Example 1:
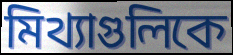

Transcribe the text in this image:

মিথ্যাগুলিকে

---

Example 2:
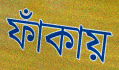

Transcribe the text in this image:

ফাঁকায়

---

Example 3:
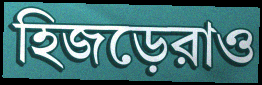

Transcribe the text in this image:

হিজড়েরাও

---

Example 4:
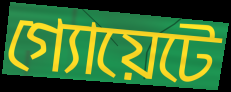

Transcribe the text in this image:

গ্যোয়েটে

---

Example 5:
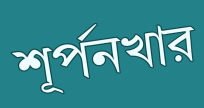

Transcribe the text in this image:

শূর্পনখার